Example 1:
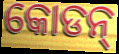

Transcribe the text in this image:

କୋଡନ୍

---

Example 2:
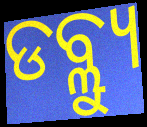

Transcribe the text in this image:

ଡବ୍ଲ୍ୟୁ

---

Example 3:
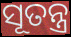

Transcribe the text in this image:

ସୂତନ୍ତ୍ର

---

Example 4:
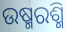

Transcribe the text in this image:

ଉଷ୍ମରଶ୍ମି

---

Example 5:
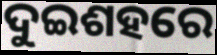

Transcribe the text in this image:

ଦୁଇଶହରେ